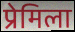
प्रेमिला